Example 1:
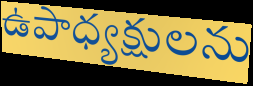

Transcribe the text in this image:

ఉపాధ్యక్షులను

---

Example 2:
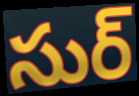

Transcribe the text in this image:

సుర్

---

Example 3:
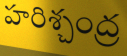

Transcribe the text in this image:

హరిశ్చంద్ర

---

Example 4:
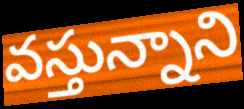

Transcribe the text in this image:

వస్తున్నాని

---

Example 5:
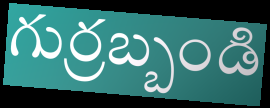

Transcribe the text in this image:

గుర్రబ్బండి